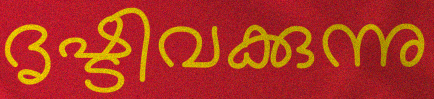
ദൃഷ്ടിവക്കുന്നു